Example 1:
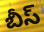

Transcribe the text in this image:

బీస్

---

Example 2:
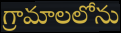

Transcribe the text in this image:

గ్రామాలలోను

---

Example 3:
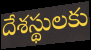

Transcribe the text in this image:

దేశస్థులకు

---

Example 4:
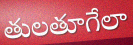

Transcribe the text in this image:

తులతూగేలా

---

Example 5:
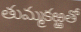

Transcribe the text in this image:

తుమ్మకఱ్ఱతో